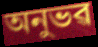
অনুভৱ